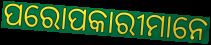
ପରୋପକାରୀମାନେ